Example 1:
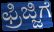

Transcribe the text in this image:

ಫ್ರಿಜ್ಜಿಗೆ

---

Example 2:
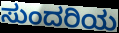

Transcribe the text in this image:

ಸುಂದರಿಯ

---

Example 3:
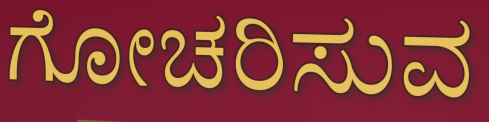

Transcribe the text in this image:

ಗೋಚರಿಸುವ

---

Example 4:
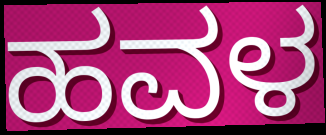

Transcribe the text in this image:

ಹವಳ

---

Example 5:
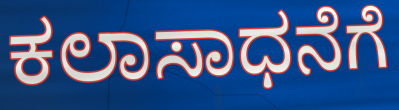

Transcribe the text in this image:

ಕಲಾಸಾಧನೆಗೆ